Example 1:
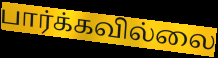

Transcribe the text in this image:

பார்க்கவில்லை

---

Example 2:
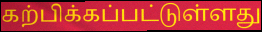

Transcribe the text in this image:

கற்பிக்கப்பட்டுள்ளது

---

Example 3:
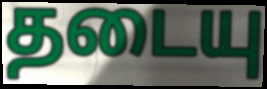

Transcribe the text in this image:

தடையு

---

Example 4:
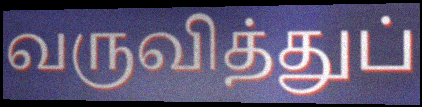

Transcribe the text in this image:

வருவித்துப்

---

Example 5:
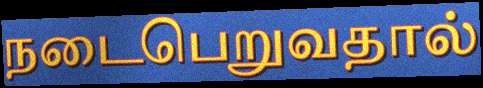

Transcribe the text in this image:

நடைபெறுவதால்